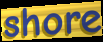
shore